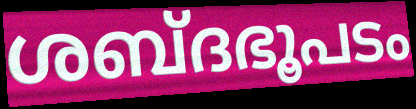
ശബ്ദഭൂപടം